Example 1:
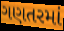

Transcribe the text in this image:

ગણતરમાં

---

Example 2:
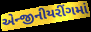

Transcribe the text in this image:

એન્જીનીયરીંગમાં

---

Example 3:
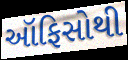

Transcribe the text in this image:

ઑફિસોથી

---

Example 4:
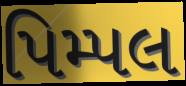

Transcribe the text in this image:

પિમ્પલ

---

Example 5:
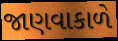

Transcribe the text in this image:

જાણવાકાળે